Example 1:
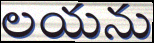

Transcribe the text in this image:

లయను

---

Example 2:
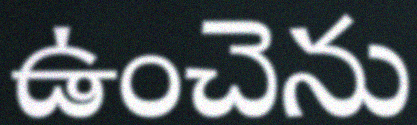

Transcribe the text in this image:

ఉంచెను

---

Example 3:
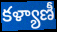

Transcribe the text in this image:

కళ్యాణీ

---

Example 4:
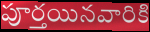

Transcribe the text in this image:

పూర్తయినవారికి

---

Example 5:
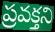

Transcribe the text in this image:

ప్రవక్తని